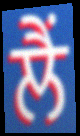
ਲੈਂ